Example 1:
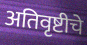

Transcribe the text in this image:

अतिवृष्टीचे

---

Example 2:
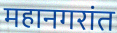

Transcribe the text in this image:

महानगरांत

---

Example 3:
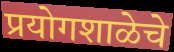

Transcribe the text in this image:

प्रयोगशाळेचे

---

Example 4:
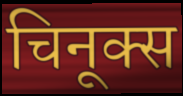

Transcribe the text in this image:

चिनूक्स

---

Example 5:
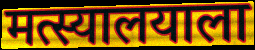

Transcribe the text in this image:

मत्स्यालयाला